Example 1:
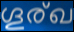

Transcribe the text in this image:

ഗൂര്ഖ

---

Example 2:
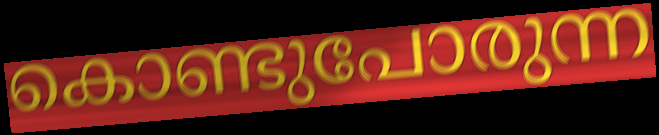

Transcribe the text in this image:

കൊണ്ടുപോരുന്ന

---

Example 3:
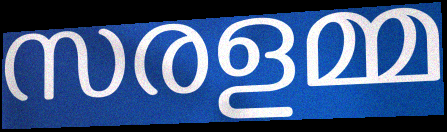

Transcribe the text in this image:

സരളമ്മ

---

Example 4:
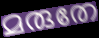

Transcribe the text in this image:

മരുതേ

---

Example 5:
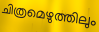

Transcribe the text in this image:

ചിത്രമെഴുത്തിലും